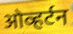
ओव्हर्टन